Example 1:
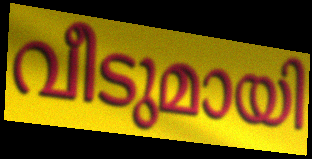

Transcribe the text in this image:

വീടുമായി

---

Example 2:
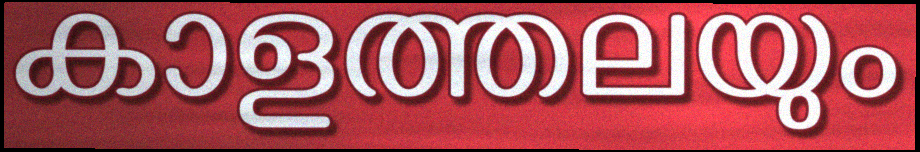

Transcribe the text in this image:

കാളത്തലയും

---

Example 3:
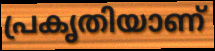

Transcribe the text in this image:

പ്രകൃതിയാണ്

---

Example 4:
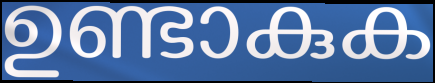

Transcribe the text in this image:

ഉണ്ടാകുക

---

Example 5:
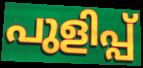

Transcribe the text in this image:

പുളിപ്പ്